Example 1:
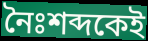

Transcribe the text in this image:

নৈঃশব্দকেই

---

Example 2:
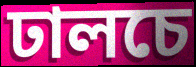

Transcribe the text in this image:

ঢালচে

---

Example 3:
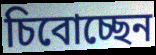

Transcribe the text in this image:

চিবোচ্ছেন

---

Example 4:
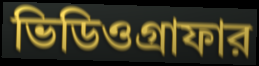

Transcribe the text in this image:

ভিডিওগ্রাফার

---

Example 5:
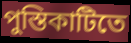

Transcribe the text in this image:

পুস্তিকাটিতে